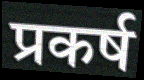
प्रकर्ष